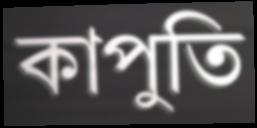
কাপুতি